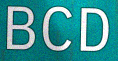
BCD